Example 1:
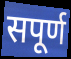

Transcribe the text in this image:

सपूर्ण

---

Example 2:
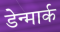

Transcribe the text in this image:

डेन्मार्क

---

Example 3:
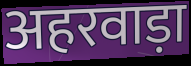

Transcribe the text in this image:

अहरवाड़ा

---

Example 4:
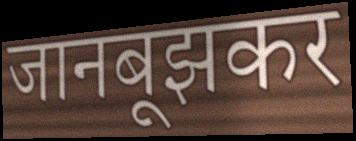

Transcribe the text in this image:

जानबूझकर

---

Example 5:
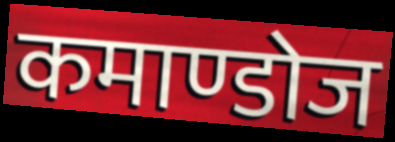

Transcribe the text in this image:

कमाण्डोज